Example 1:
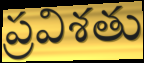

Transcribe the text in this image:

ప్రవిశతు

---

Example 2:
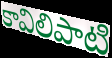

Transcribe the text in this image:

కావిలిపాటి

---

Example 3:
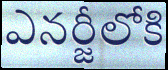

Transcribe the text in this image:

ఎనర్జీలోకి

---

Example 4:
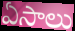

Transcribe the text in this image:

ఏసాలు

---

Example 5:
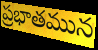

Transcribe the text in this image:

ప్రభాతమున